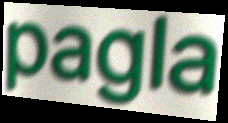
pagla